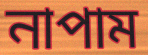
নাপাম